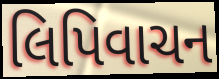
લિપિવાચન